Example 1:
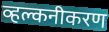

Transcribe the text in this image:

व्हल्कनीकरण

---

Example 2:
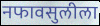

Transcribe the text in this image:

नफावसुलीला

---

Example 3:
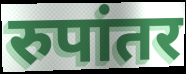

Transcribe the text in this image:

रुपांतर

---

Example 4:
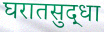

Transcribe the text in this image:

घरातसुद्धा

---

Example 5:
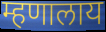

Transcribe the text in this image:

म्हणालाय